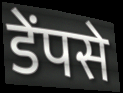
डेंपसे